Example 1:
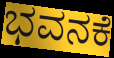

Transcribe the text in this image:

ಭವನಕೆ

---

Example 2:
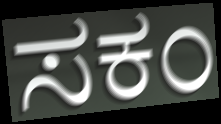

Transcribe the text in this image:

ಸಕಂ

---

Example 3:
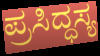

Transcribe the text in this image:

ಪ್ರಸಿದ್ಧಸ್ಯ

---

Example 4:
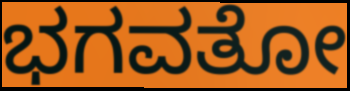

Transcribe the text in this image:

ಭಗವತೋ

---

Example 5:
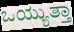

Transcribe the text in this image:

ಒಯ್ಯುತ್ತಾ